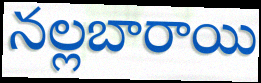
నల్లబారాయి